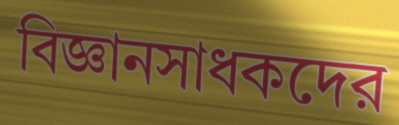
বিজ্ঞানসাধকদের